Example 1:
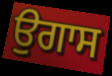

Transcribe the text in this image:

ਉਗਾਸ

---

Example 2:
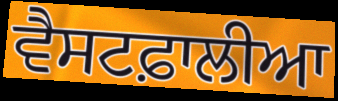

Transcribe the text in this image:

ਵੈਸਟਫ਼ਾਲੀਆ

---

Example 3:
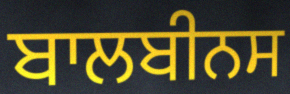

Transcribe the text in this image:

ਬਾਲਬੀਨਸ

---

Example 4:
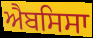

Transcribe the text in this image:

ਐਬਸਿਸਾ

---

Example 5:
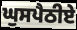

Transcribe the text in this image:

ਘੁਸਪੈਠੀਏ